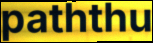
paththu